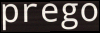
prego